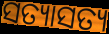
ସତ୍ୟାସତ୍ୟ